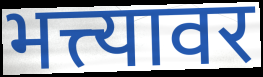
भत्त्यावर